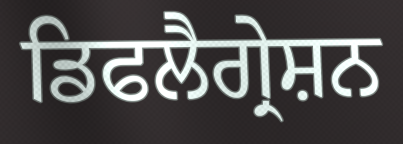
ਡਿਫਲੈਗ੍ਰੇਸ਼ਨ